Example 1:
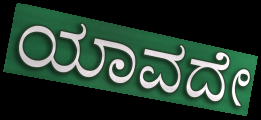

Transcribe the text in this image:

ಯಾವದೇ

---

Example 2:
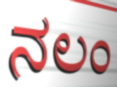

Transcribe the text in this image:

ನಲಂ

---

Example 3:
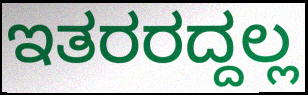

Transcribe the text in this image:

ಇತರರದ್ದಲ್ಲ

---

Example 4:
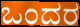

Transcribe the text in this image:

ಒಂದರ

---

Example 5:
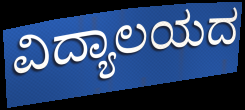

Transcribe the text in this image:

ವಿದ್ಯಾಲಯದ